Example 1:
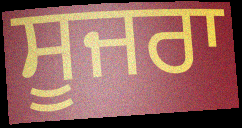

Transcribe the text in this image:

ਸੂਜਰਾ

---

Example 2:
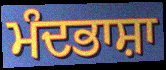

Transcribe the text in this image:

ਮੰਦਭਾਸ਼ਾ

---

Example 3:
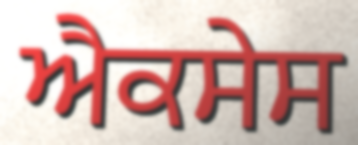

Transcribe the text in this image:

ਐਕਸੇਸ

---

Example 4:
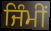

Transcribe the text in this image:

ਜਿੰਮੀਂ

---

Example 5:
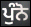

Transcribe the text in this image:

ਪੁੰਨੋ